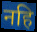
नहि